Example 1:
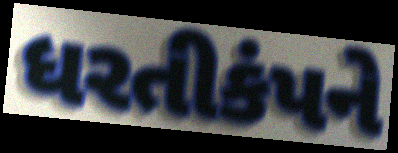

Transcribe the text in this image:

ધરતીકંપને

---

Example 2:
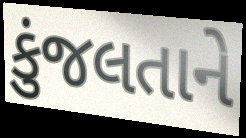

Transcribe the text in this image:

કુંજલતાને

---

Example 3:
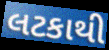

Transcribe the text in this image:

લટકાથી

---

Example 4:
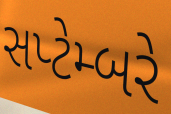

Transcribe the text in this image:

સપ્ટેમ્બરે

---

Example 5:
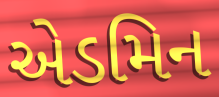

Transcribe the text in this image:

એડમિન